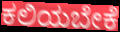
ಕಲಿಯಬೇಕೆ